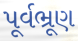
પૂર્વભ્રૂણ